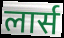
लार्स